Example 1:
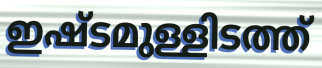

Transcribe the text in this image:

ഇഷ്ടമുള്ളിടത്ത്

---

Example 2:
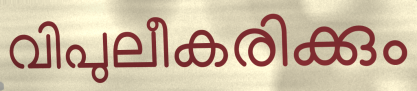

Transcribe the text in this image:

വിപുലീകരിക്കും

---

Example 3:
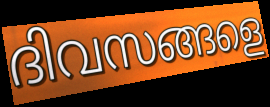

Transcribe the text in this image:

ദിവസങ്ങളെ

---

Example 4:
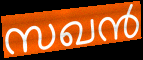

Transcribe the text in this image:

സഖൻ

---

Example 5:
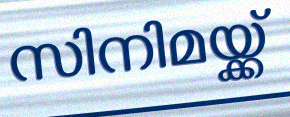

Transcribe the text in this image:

സിനിമയ്ക്ക്